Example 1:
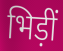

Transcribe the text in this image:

भिड़ीं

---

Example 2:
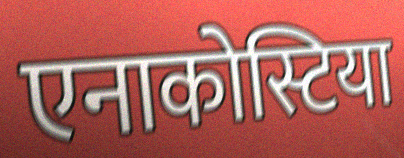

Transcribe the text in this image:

एनाकोस्टिया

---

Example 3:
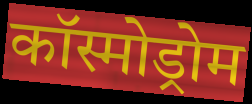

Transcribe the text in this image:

कॉस्मोड्रोम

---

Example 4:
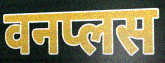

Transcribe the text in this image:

वनप्लस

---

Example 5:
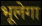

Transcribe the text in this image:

भूलेगा